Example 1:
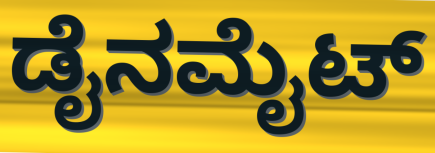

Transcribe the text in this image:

ಡೈನಮೈಟ್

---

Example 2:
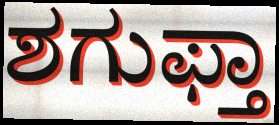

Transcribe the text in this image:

ಶಗುಫ್ತಾ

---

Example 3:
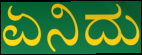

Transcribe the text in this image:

ಏನಿದು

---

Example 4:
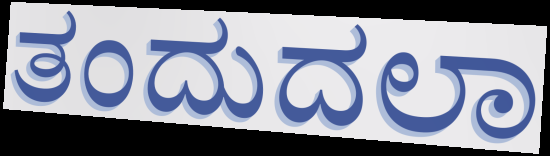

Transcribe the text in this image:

ತಂದುದಲಾ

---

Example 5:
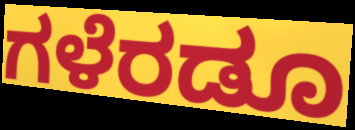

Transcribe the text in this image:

ಗಳೆರಡೂ